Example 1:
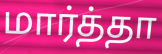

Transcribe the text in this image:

மார்த்தா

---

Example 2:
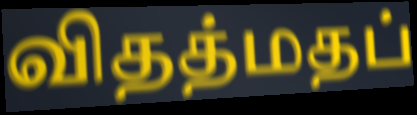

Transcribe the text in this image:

விதத்மதப்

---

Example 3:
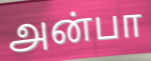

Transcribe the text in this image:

அன்பா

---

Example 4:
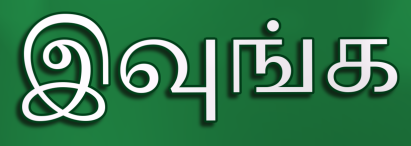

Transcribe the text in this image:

இவுங்க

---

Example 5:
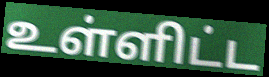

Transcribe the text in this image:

உள்ளிட்ட